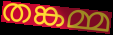
തങ്കമ്മ